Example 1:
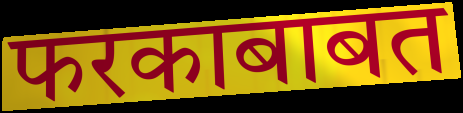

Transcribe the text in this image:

फरकाबाबत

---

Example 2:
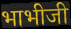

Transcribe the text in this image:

भाभीजी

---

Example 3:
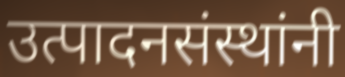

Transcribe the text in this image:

उत्पादनसंस्थांनी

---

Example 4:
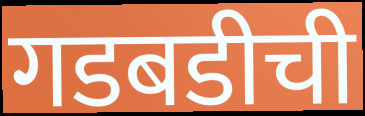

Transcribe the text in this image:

गडबडीची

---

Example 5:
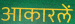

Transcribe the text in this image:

आकारलें